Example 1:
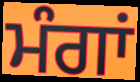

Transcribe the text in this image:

ਮੰਗਾਂ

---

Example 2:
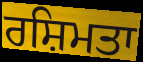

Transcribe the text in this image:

ਰਸ਼ਿਮਤਾ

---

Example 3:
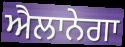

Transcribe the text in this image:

ਐਲਾਨੇਗਾ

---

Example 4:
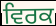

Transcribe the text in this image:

ਵਿਰਕ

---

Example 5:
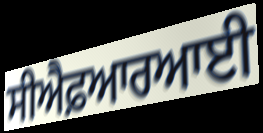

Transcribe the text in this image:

ਸੀਐਫ਼ਆਰਆਈ